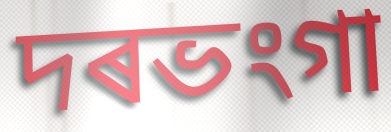
দৰভংগা